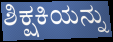
ಶಿಕ್ಷಕಿಯನ್ನು